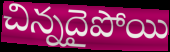
చిన్నదైపోయి